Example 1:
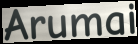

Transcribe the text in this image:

Arumai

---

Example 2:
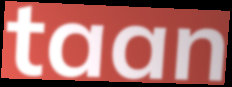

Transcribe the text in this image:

taan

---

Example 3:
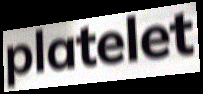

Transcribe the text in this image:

platelet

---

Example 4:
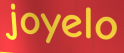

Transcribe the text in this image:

joyelo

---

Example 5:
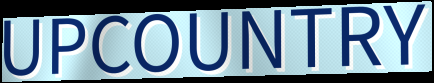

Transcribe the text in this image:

UPCOUNTRY